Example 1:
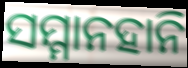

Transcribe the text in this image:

ସମ୍ମାନହାନି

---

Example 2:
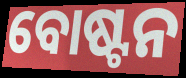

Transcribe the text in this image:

ବୋଷ୍ଟନ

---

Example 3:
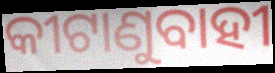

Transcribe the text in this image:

କୀଟାଣୁବାହୀ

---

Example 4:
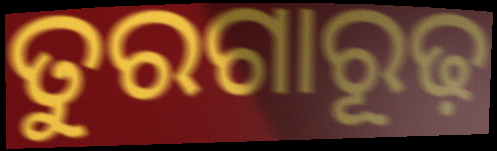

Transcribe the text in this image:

ତୁରଗାରୂଢ଼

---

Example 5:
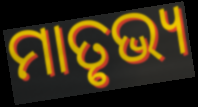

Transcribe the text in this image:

ମାତୃଭ୍ୟ